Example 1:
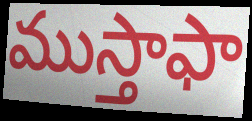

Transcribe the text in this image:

ముస్తాఫా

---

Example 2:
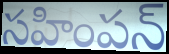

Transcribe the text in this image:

సహింపన్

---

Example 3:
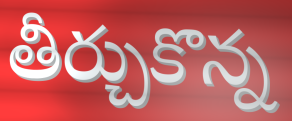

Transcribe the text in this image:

తీర్చుకొన్న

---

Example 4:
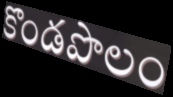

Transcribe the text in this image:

కొండపొలం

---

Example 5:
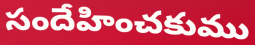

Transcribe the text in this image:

సందేహించకుము